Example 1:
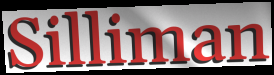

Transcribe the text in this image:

Silliman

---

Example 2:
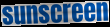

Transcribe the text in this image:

sunscreen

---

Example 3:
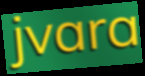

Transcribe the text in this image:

jvara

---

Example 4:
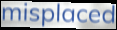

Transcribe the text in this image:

misplaced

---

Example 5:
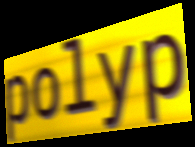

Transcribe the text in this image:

polyp